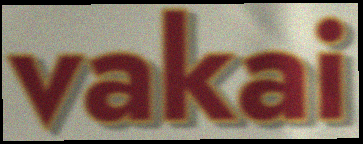
vakai